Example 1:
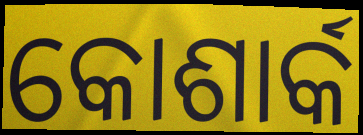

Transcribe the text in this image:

କୋଶାର୍କ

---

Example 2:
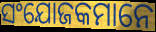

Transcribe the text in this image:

ସଂଯୋଜକମାନେ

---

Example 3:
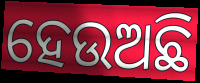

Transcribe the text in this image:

ହେଉଅଛି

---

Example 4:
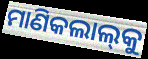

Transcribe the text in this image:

ମାଣିକଲାଲ୍‍କୁ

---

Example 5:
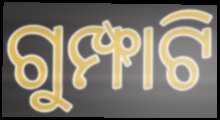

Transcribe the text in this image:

ଗୁମ୍ଫାଟି